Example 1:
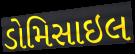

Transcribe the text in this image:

ડોમિસાઇલ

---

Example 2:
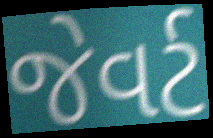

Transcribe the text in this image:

જેવર્ટ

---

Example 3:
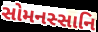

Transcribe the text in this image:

સોમનસ્સાનિ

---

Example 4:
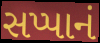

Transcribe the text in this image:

સપ્પાનં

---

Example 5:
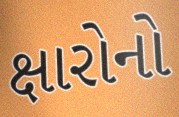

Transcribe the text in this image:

ક્ષારોનો